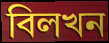
বিলখন